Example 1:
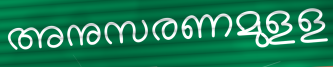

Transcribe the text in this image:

അനുസരണമുളള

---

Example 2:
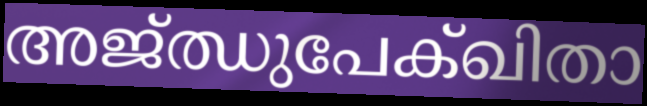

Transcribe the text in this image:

അജ്ഝുപേക്ഖിതാ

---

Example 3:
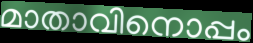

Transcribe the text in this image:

മാതാവിനൊപ്പം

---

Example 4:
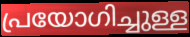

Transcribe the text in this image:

പ്രയോഗിച്ചുള്ള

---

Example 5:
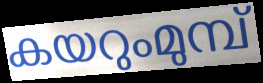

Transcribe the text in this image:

കയറുംമുമ്പ്